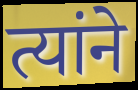
त्यांने